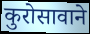
कुरोसावाने